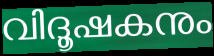
വിദൂഷകനും